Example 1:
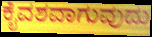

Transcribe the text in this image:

ಕೈವಶವಾಗುವುದು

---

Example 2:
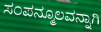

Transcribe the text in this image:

ಸಂಪನ್ಮೂಲವನ್ನಾಗಿ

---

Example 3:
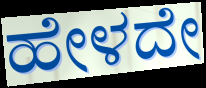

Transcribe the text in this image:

ಹೇಳದೇ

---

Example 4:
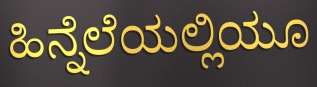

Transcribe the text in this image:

ಹಿನ್ನೆಲೆಯಲ್ಲಿಯೂ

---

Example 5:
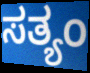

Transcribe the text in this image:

ಸತ್ಯಂ